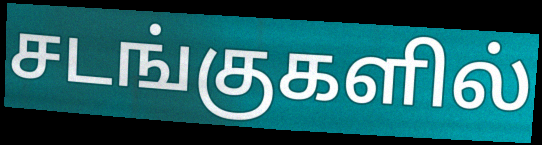
சடங்குகளில்